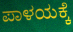
ಪಾಳಯಕ್ಕೆ